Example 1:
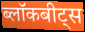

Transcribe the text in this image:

ब्लॉकबीट्स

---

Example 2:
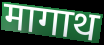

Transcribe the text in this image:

मागाथ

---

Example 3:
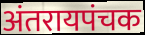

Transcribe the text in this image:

अंतरायपंचक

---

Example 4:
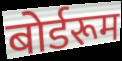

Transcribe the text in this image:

बोर्डरूम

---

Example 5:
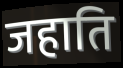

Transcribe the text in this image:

जहाति